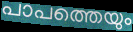
പാപത്തെയും